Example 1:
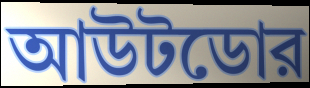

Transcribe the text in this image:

আউটডোর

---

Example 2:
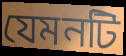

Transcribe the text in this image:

যেমনটি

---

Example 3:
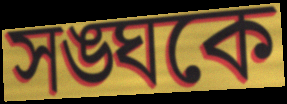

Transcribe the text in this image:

সঙ্ঘকে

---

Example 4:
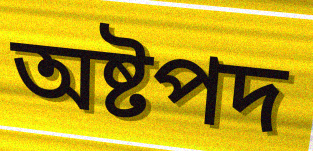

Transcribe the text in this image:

অষ্টপদ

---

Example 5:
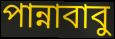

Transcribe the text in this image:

পান্নাবাবু